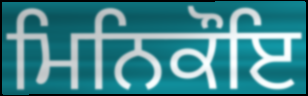
ਮਿਨਿਕੌਇ